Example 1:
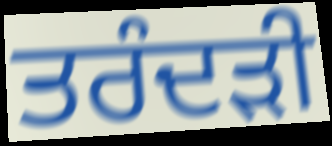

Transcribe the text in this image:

ਤਰੰਦੜੀ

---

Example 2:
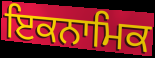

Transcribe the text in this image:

ਇਕਨਾਮਿਕ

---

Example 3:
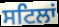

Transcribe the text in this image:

ਸਟਿਲਾਂ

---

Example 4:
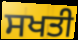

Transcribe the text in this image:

ਸਖਤੀ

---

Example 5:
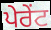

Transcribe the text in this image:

ਪੇਰੇਂਟ